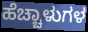
ಹೆಚ್ಚಾಳುಗಳ